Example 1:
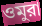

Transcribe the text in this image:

ওমুরা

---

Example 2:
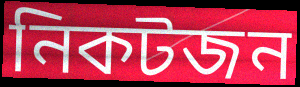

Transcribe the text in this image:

নিকটজন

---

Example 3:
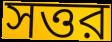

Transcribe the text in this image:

সত্তর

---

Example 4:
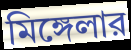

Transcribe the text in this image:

মিঙ্গেলার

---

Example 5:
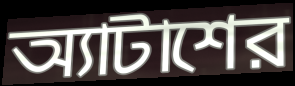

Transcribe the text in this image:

অ্যাটাশের